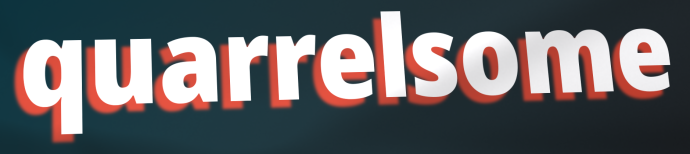
quarrelsome